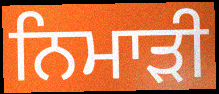
ਨਿਮਾੜੀ